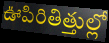
ఊపిరితిత్తుల్లో